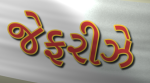
જેફરીઝે